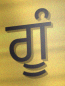
ਗੂੰ